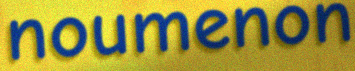
noumenon